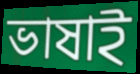
ভাষাই